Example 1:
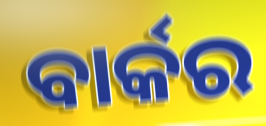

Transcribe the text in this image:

ବାର୍କର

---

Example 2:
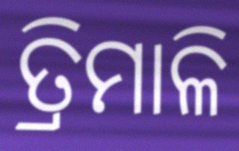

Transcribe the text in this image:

ତ୍ରିମାଳି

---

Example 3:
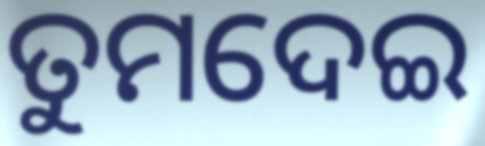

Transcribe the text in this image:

ତୁମଦେଇ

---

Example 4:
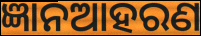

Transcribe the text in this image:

ଜ୍ଞାନଆହରଣ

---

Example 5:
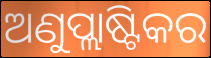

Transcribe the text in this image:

ଅଣୁପ୍ଲାଷ୍ଟିକର